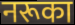
नरूका